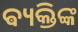
ଵ୍ୟକ୍ତିଙ୍କ